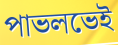
পাভলভেই